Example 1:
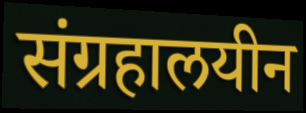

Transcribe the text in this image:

संग्रहालयीन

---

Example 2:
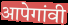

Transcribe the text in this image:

आपेगांवी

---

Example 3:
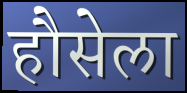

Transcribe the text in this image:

हौसेला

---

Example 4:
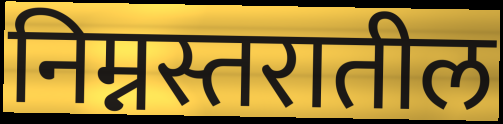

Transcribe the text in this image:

निम्नस्तरातील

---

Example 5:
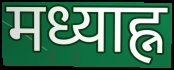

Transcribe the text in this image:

मध्याह्न